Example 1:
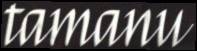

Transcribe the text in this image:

tamanu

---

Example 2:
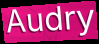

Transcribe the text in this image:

Audry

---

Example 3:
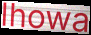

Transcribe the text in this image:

Ihowa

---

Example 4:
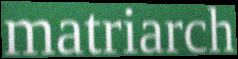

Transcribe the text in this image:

matriarch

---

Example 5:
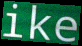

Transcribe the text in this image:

ike